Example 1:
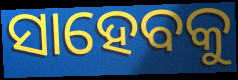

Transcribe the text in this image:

ସାହେବକୁ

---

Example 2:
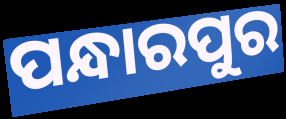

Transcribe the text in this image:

ପନ୍ଧାରପୁର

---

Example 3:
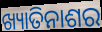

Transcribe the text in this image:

ଖ୍ୟାତିନାଶର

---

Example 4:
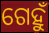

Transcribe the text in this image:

ଗେହୁଁ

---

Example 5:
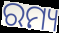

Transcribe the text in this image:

ରମ୍ୟ